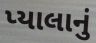
પ્યાલાનું